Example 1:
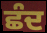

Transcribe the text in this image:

ਛੰਦ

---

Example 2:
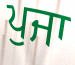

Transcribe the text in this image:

ਪੁਜਾ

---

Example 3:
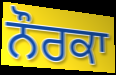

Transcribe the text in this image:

ਨੌਰਕਾ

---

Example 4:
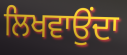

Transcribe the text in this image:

ਲਿਖਵਾਉਂਦਾ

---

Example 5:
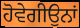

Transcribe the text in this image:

ਹੋਵੇਗੀਉਨਾਂ